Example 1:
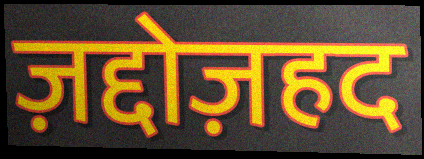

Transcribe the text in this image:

ज़द्दोज़हद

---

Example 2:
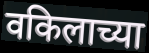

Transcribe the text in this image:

वकिलाच्या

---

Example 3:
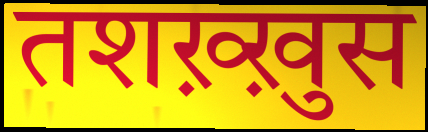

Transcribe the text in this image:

तशख़्ख़ुस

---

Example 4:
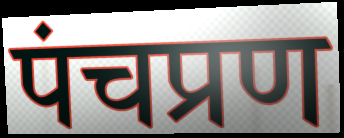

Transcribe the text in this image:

पंचप्रण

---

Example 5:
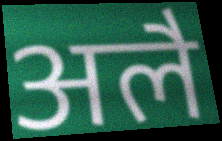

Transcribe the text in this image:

अलै